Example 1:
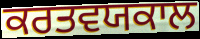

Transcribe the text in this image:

ਕਰਤਵਯਕਾਲ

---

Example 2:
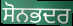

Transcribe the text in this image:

ਸੋਨਭਦਰ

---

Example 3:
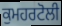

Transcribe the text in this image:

ਕੁਮਹਰਟੋਲੀ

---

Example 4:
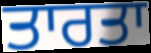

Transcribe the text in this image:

ਤਾਰਤਾ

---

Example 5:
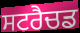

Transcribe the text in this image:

ਸਟਰੈਚਡ